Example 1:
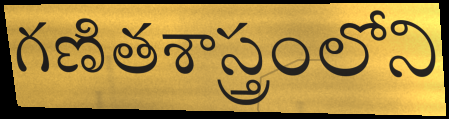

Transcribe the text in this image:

గణితశాస్త్రంలోని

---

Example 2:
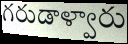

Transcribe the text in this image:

గరుడాళ్వారు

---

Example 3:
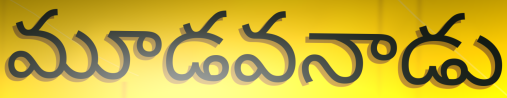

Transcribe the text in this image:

మూడవనాడు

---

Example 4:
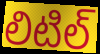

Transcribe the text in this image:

లిటిల్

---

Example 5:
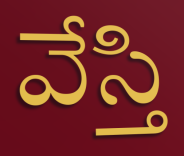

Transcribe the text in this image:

వేస్తి